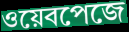
ওয়েবপেজে